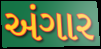
અંગાર